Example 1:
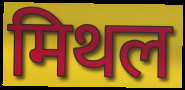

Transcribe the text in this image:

मिथल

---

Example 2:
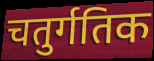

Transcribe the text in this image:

चतुर्गतिक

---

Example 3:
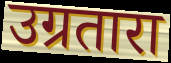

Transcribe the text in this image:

उग्रतारा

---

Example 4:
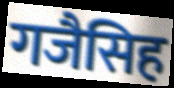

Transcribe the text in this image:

गजैसिह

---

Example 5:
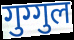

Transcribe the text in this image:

गुग्‍गुल